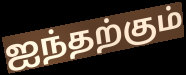
ஐந்தற்கும்